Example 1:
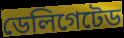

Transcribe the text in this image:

ডেলিগেটেড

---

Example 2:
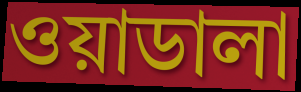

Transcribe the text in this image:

ওয়াডালা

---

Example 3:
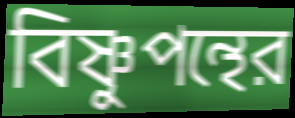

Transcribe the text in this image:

বিষ্ণুপন্থের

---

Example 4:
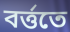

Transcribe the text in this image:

বর্ত্ততে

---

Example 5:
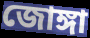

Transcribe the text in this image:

জোঙ্গা